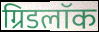
ग्रिडलॉक